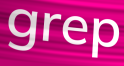
grep